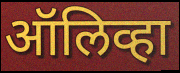
ऑलिव्हा